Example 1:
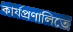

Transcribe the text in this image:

কার্যপ্রণালিতে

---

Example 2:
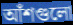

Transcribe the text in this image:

আঁশগুলো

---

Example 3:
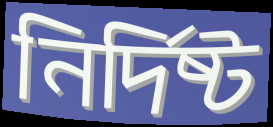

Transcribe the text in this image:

নির্দিষ্ট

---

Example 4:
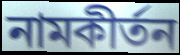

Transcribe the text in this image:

নামকীর্তন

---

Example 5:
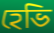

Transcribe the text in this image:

হেভি